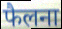
फैलना